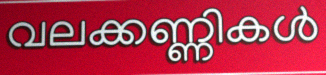
വലക്കണ്ണികൾ